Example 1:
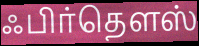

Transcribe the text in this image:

ஃபிர்தௌஸ்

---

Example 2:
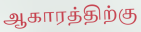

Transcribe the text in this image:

ஆகாரத்திற்கு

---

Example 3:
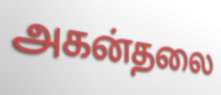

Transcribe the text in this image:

அகன்தலை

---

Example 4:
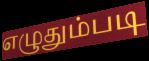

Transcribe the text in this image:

எழுதும்படி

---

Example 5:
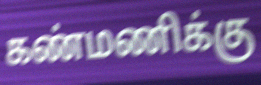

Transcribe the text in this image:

கண்மணிக்கு